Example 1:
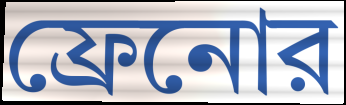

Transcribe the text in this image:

ফ্রেনোর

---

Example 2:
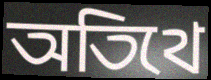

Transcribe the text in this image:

অতিথে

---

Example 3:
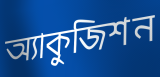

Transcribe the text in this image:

অ্যাকুজিশন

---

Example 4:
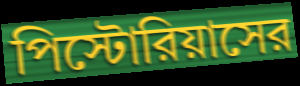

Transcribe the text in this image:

পিস্টোরিয়াসের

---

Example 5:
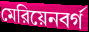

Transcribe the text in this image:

মেরিয়েনবর্গ